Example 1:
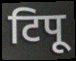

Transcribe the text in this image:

टिपू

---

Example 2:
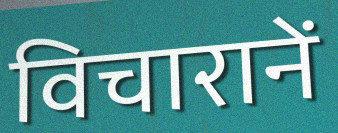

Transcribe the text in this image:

विचारानें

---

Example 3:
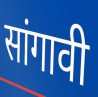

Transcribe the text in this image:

सांगावी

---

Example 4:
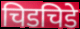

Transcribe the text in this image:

चिडचिडे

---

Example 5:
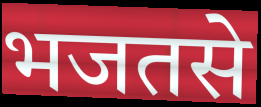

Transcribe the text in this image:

भजतसे